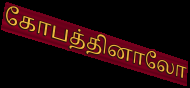
கோபத்தினாலோ